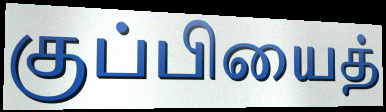
குப்பியைத்